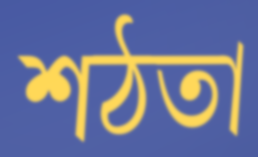
শঠতা